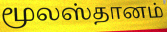
மூலஸ்தானம்